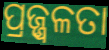
ପ୍ରଜ୍ଜ୍ୱଳତା